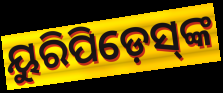
ୟୁରିପିଡ଼େସ୍‌ଙ୍କ